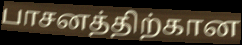
பாசனத்திற்கான